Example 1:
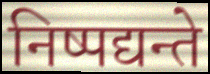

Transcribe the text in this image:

निष्पद्यन्ते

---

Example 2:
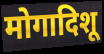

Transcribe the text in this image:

मोगादिशू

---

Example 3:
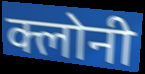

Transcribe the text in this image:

क्लोनी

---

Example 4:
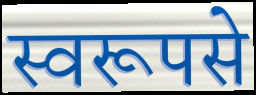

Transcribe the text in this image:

स्वरूपसे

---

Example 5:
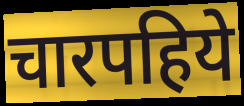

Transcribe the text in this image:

चारपहिये